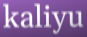
kaliyu